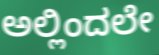
ಅಲ್ಲಿಂದಲೇ